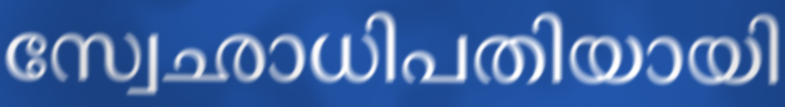
സ്വേഛാധിപതിയായി